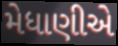
મેધાણીએ